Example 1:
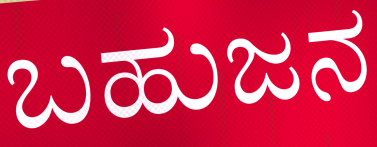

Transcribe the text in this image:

ಬಹುಜನ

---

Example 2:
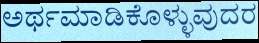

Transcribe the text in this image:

ಅರ್ಥಮಾಡಿಕೊಳ್ಳುವುದರ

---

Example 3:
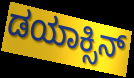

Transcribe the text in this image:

ಡಯಾಕ್ಸಿನ್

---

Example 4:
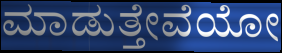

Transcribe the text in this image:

ಮಾಡುತ್ತೇವೆಯೋ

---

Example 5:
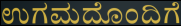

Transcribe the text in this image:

ಉಗಮದೊಂದಿಗೆ